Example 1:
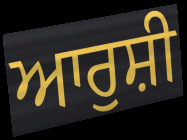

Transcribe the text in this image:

ਆਰੁਸ਼ੀ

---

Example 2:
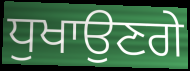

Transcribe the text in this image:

ਧੁਖਾਉਣਗੇ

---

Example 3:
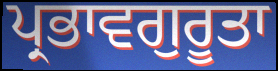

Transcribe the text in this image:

ਪ੍ਰਭਾਵਗੁਰੂਤਾ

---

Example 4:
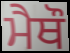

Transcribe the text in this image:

ਮੈਥੌ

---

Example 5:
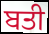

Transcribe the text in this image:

ਬਤੀ